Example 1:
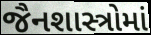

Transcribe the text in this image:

જૈનશાસ્ત્રોમાં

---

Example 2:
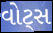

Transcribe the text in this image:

વોટ્સ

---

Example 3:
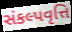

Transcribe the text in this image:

સંકલ્પવૃત્તિ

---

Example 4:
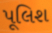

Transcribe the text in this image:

પૂલિશ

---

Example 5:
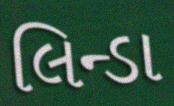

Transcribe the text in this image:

લિન્ડા